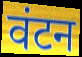
वंटन